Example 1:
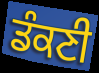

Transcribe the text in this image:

ਡੰਕਣੀ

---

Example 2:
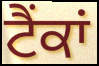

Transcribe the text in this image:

ਟੈਂਕਾਂ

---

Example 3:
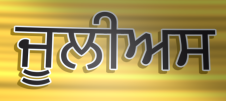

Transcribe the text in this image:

ਜੂਲੀਅਸ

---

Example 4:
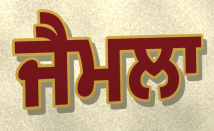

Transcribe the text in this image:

ਜੈਮਲਾ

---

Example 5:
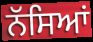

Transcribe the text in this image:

ਨੱਸਿਆਂ